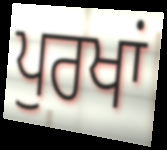
ਪੁਰਖਾਂ